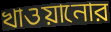
খাওয়ানোর